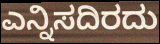
ಎನ್ನಿಸದಿರದು